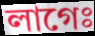
লাগেঃ